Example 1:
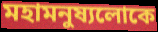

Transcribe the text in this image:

মহামনুষ্যলোকে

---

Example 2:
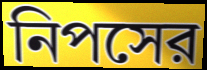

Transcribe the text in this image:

নিপসের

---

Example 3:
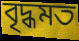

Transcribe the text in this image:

বৃদ্ধমত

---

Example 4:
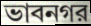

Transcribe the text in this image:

ভাবনগর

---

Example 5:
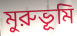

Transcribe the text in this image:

মুরুভূমি